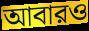
আবারও